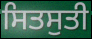
ਸਿਤਸੁਤੀ